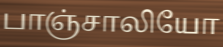
பாஞ்சாலியோ